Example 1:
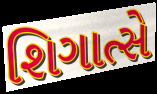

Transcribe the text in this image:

શિગાત્સે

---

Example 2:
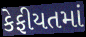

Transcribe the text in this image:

કેફીયતમાં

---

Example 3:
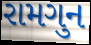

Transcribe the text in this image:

રામગુન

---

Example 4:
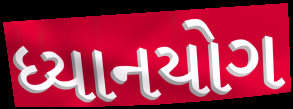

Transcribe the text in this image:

ધ્યાનયોગ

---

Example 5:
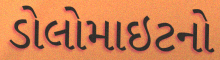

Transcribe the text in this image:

ડોલોમાઇટનો